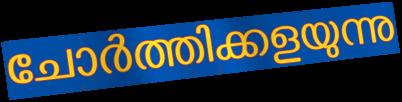
ചോർത്തിക്കളയുന്നു